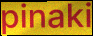
pinaki